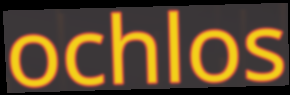
ochlos